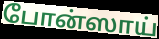
போன்ஸாய்